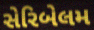
સેરિબેલમ